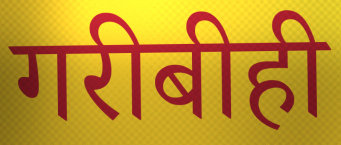
गरीबीही